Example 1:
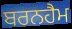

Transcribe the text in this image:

ਬਰਨਹੈਮ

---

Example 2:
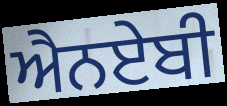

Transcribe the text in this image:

ਐਨਏਬੀ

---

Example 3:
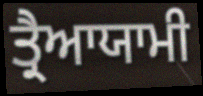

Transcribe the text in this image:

ਤ੍ਰੈਆਯਾਮੀ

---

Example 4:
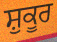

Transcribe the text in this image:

ਸ਼ੁਕੂਰ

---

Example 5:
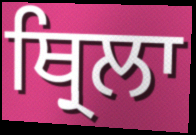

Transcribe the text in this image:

ਥ੍ਰਿਲਾ